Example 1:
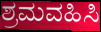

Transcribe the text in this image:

ಶ್ರಮವಹಿಸಿ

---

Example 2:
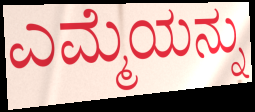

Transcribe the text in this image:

ಎಮ್ಮೆಯನ್ನು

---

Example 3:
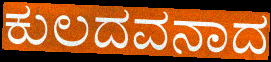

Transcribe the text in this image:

ಕುಲದವನಾದ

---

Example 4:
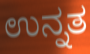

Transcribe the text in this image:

ಉನ್ನತ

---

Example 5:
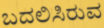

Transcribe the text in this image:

ಬದಲಿಸಿರುವ